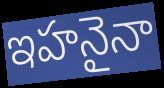
ఇహనైనా